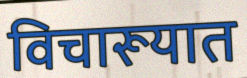
विचारूयात